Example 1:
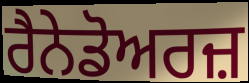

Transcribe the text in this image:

ਰੈਨੇਡੋਅਰਜ਼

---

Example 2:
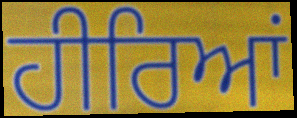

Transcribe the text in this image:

ਹੀਰਿਆਂ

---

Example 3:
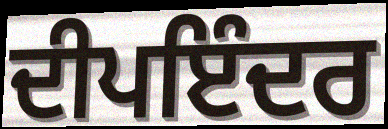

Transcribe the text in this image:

ਦੀਪਇੰਦਰ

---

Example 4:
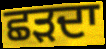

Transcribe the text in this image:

ਛੜਦਾ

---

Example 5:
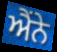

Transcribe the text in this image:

ਐਂਨੇ